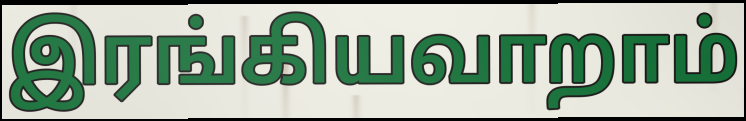
இரங்கியவாறாம்